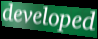
developed